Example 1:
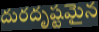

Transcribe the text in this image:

దురదృష్టమైన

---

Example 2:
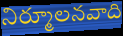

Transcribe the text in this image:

నిర్మూలనవాది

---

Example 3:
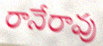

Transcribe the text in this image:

రానేరావు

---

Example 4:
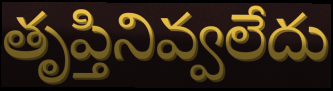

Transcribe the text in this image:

తృప్తినివ్వలేదు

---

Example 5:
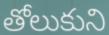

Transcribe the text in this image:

తోలుకుని